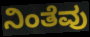
ನಿಂತೆವು